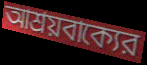
আশ্রয়বাক্যের